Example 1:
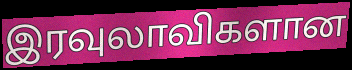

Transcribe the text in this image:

இரவுலாவிகளான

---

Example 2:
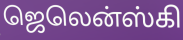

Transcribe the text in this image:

ஜெலென்ஸ்கி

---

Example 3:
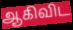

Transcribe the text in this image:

ஆகிவிட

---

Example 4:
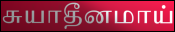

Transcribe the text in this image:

சுயாதீனமாய்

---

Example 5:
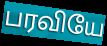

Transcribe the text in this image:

பரவியே